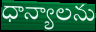
ధాన్యాలను